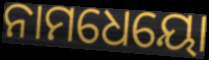
ନାମଧେୟୋ